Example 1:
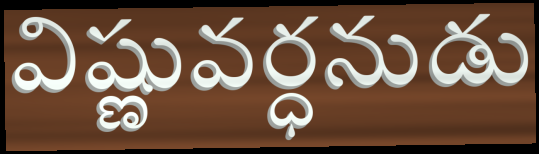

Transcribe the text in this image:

విష్ణువర్ధనుడు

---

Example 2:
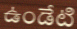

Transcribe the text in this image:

ఉండేటి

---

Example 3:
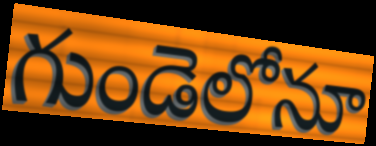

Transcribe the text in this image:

గుండెలోనూ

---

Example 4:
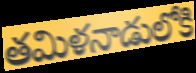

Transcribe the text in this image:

తమిళనాడులోకి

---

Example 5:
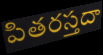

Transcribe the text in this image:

పితరస్తదా